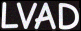
LVAD